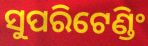
ସୁପରିଟେଣ୍ଡିଂ